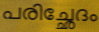
പരിച്ഛേദം